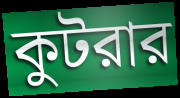
কুটরার